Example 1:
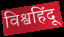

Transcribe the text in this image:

विश्वहिंदू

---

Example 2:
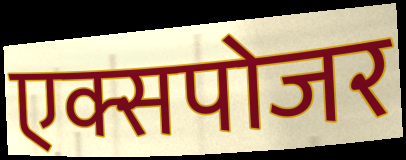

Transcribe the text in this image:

एक्सपोजर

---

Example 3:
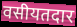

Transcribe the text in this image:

वसीयतदार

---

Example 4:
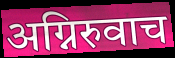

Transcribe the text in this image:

अग्निरुवाच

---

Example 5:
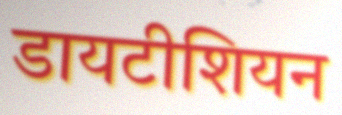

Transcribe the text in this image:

डायटीशियन